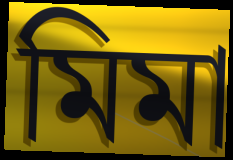
মিমা